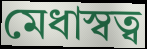
মেধাস্বত্ব